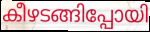
കീഴടങ്ങിപ്പോയി